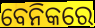
ବେନିକରେ